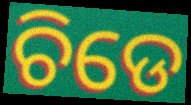
ଚିଡେ